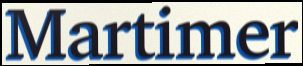
Martimer